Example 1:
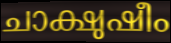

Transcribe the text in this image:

ചാക്ഷുഷീം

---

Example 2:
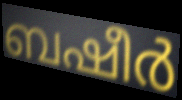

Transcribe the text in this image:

ബഷീർ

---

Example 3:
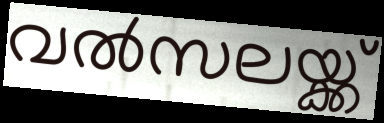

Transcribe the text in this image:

വൽസലയ്ക്ക്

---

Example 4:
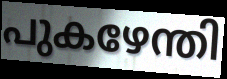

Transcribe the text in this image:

പുകഴേന്തി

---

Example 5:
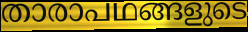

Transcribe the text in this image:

താരാപഥങ്ങളുടെ